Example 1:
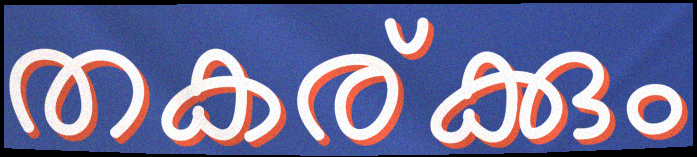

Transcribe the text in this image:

തകര്ക്കും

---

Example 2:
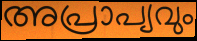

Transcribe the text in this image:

അപ്രാപ്യവും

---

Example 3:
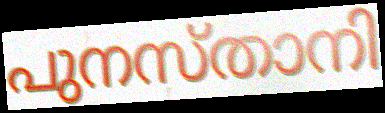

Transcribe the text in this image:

പുനസ്താനി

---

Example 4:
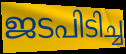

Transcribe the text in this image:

ജടപിടിച്ച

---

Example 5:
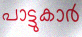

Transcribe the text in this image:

പാട്ടുകാർ